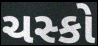
ચસ્કો